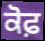
ਕੋਫ਼